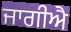
ਜਾਗੀਐ